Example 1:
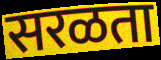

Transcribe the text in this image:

सरळता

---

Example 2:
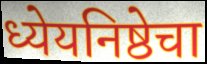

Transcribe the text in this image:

ध्येयनिष्ठेचा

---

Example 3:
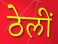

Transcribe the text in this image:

ठेलीं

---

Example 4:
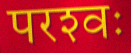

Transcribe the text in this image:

परश्वः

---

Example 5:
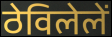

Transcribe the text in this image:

ठेविलेलें